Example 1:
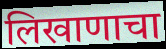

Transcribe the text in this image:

लिखाणाचा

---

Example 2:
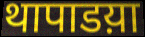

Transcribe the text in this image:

थापाडय़ा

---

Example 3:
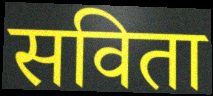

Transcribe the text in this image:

सविता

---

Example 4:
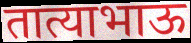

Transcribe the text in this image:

तात्याभाऊ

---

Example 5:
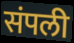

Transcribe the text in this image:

संपली